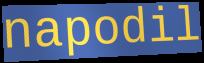
napodil